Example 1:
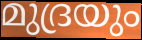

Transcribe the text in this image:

മുദ്രയും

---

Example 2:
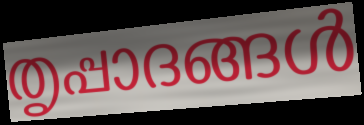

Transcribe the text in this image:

തൃപ്പാദങ്ങൾ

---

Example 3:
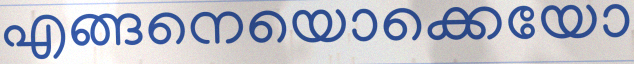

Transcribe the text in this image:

എങ്ങനെയൊക്കെയോ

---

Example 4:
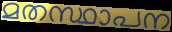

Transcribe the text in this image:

മതസ്ഥാപന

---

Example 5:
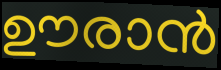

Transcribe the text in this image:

ഊരാൻ